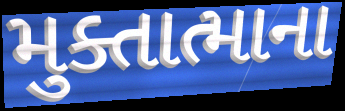
મુક્તાત્માના